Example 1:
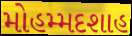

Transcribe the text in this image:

મોહમ્મદશાહ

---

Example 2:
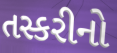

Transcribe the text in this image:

તસ્કરીનો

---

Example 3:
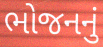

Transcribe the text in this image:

ભોજનનું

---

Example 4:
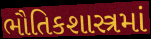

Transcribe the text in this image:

ભૌતિકશાસ્ત્રમાં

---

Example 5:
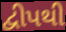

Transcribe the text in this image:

દ્વીપથી